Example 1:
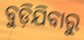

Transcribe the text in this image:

ବୁଡ଼ିଯିବାରୁ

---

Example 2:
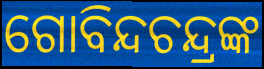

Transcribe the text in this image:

ଗୋବିନ୍ଦଚନ୍ଦ୍ରଙ୍କ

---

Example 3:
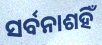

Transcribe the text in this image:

ସର୍ବନାଶହିଁ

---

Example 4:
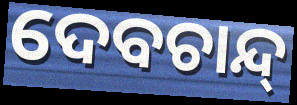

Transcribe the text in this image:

ଦେବଚାନ୍ଦ୍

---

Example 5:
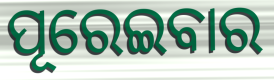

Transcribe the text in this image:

ପୂରେଇବାର